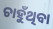
ଚାହୁଁଥିବା